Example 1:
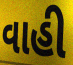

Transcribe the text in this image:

વાહી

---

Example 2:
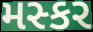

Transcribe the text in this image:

મસ્કર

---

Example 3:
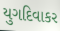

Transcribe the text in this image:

યુગદિવાકર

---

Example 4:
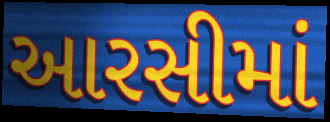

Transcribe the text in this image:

આરસીમાં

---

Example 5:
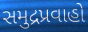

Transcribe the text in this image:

સમુદ્રપ્રવાહો